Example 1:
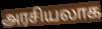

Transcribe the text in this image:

அரசியலாக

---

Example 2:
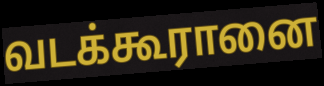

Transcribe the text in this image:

வடக்கூரானை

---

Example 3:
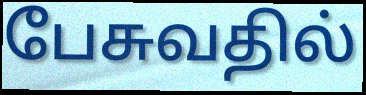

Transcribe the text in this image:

பேசுவதில்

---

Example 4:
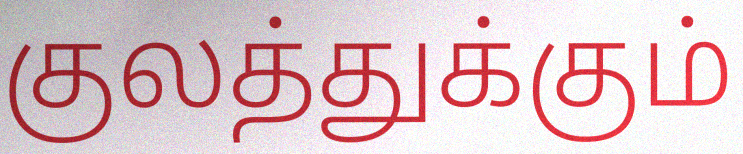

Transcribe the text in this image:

குலத்துக்கும்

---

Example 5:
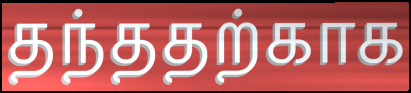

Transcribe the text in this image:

தந்ததற்காக